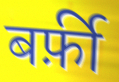
बर्फ़ी